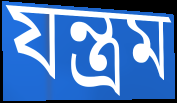
যন্ত্রম